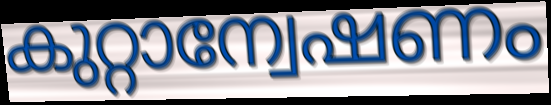
കുറ്റാന്വേഷണം